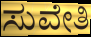
ಸುವೇತಿ